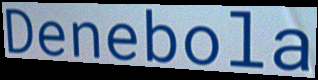
Denebola